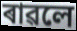
ৰাৱলে